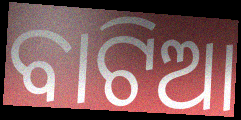
ବାଟିଆ